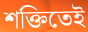
শক্তিতেই